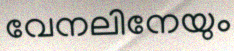
വേനലിനേയും